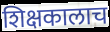
शिक्षकालाच